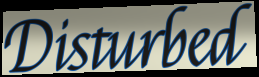
Disturbed